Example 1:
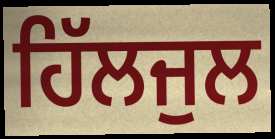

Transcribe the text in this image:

ਹਿੱਲਜੁਲ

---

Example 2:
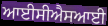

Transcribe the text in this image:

ਆਈਸੀਐਸਆਈ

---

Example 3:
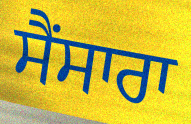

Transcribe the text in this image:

ਸੈਂਸਾਰਾ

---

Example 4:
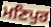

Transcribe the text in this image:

ਮਣਿਪੁਰ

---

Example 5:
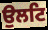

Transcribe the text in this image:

ਉਲਟਿ